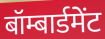
बॉम्बार्डमेंट